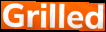
Grilled